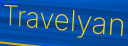
Travelyan